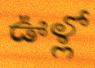
ఊళ్లో